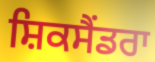
ਸ਼ਿਕਸੈਂਡਰਾ